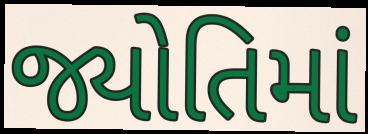
જ્યોતિમાં